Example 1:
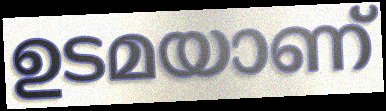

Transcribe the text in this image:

ഉടമയാണ്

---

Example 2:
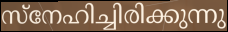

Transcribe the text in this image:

സ്നേഹിച്ചിരിക്കുന്നു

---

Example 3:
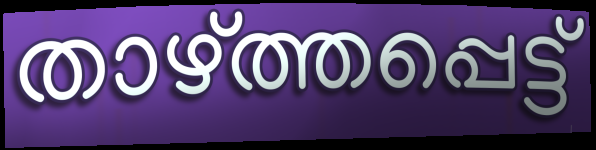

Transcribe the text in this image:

താഴ്ത്തപ്പെട്ട്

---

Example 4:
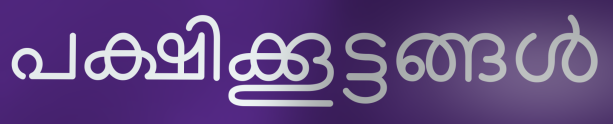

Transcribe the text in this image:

പക്ഷിക്കൂട്ടങ്ങൾ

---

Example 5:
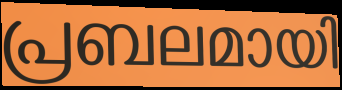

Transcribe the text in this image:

പ്രബലമായി